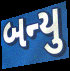
બન્યુ